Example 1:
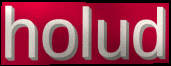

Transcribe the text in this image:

holud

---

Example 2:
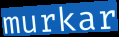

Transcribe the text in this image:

murkar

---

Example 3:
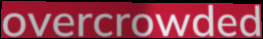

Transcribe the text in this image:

overcrowded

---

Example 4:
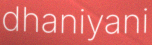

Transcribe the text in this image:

dhaniyani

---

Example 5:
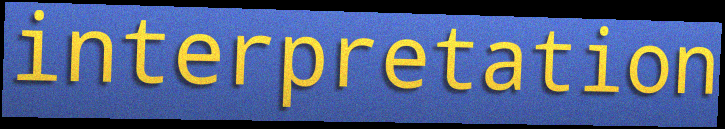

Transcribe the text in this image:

interpretation